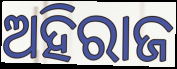
ଅହିରାଜ